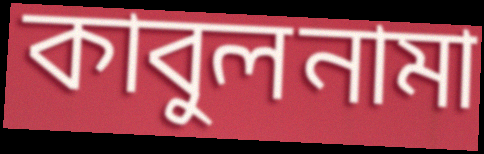
কাবুলনামা